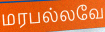
மரபல்லவே